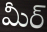
మీర్